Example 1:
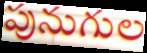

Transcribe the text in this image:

పునుగుల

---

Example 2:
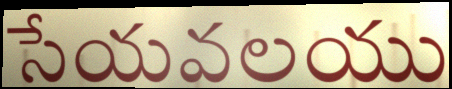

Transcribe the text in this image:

సేయవలయు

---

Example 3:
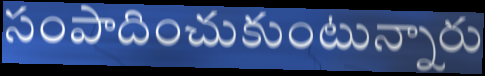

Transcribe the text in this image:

సంపాదించుకుంటున్నారు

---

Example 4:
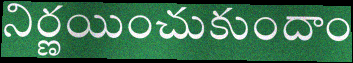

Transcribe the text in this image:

నిర్ణయించుకుందాం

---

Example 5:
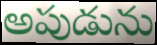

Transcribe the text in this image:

అపుడును